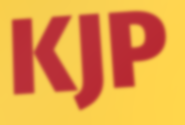
KJP